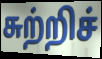
சுற்றிச்